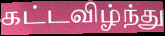
கட்டவிழ்ந்து